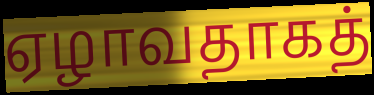
ஏழாவதாகத்